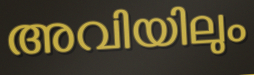
അവിയിലും